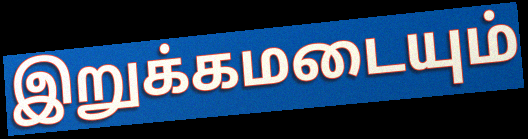
இறுக்கமடையும்